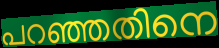
പറഞ്ഞതിനെ